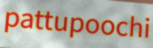
pattupoochi